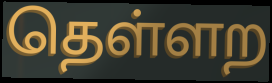
தெள்ளற